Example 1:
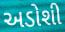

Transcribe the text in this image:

અડોશી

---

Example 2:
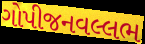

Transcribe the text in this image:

ગોપીજનવલ્લભ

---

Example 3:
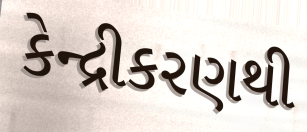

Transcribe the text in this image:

કેન્દ્રીકરણથી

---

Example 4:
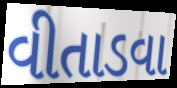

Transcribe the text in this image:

વીતાડવા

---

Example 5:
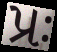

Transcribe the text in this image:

પ્રઃ